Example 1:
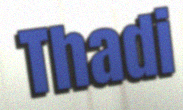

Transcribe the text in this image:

Thadi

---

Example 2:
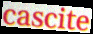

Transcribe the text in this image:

cascite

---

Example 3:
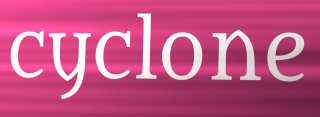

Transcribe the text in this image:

cyclone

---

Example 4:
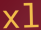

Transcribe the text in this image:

xl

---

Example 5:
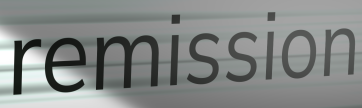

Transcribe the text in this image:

remission